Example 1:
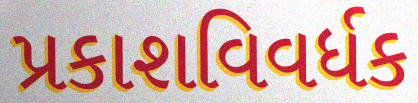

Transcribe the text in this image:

પ્રકાશવિવર્ધક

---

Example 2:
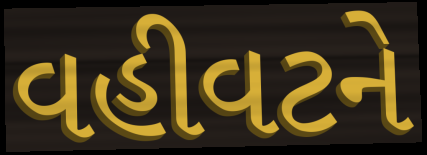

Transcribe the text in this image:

વહીવટને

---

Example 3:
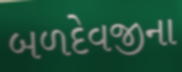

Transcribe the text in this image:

બળદેવજીના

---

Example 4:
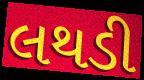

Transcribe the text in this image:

લથડી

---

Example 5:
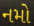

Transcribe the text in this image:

નમો